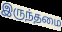
இருந்தமை